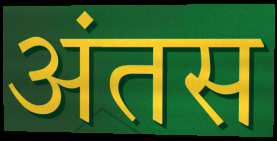
अंतस